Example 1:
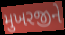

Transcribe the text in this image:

મુખરજીને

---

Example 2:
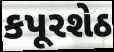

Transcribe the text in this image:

કપૂરશેઠ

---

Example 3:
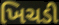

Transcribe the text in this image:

ખિચડી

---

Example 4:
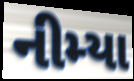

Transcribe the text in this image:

નીમ્યા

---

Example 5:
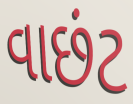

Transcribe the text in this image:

વાછંટ